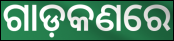
ଗାଡ଼କଣରେ